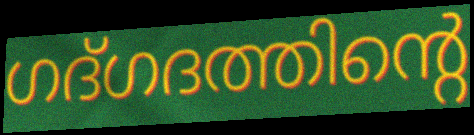
ഗദ്ഗദത്തിന്റെ